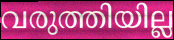
വരുത്തിയില്ല